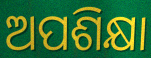
ଅପଶିକ୍ଷା